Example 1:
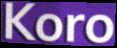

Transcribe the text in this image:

Koro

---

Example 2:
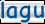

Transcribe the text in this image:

lagu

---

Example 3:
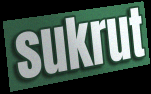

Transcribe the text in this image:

sukrut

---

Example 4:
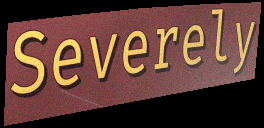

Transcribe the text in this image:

Severely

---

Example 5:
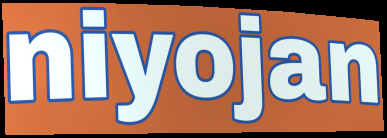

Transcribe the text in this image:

niyojan